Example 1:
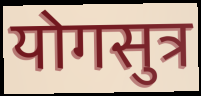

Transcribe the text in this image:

योगसुत्र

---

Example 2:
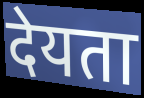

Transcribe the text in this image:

देयता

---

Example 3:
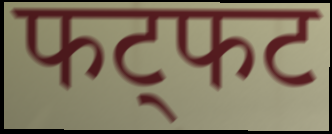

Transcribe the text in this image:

फट्फट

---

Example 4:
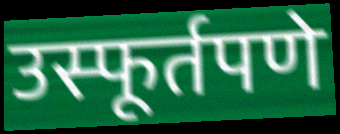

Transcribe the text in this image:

उस्फूर्तपणे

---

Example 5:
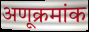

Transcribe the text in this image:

अणूक्रमांक